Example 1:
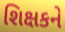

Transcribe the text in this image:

શિક્ષકને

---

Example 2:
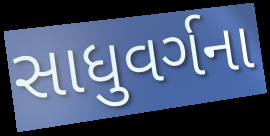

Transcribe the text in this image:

સાધુવર્ગના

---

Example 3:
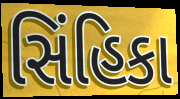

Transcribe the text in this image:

સિંહિકા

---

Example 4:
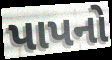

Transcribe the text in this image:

પાપનો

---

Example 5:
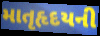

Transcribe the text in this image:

માતૃહૃદયની